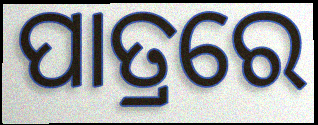
ପାତ୍ରରେ